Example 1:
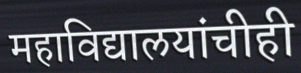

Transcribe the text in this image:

महाविद्यालयांचीही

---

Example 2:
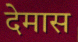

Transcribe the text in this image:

देमास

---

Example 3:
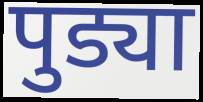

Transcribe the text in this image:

पुड्या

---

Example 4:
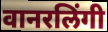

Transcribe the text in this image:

वानरलिंगी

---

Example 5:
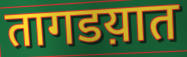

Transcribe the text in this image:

तागडय़ात